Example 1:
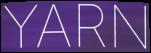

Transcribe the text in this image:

YARN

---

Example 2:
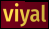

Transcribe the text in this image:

viyal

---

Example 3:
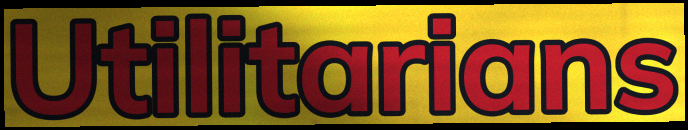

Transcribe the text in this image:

Utilitarians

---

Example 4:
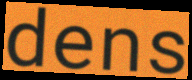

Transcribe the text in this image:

dens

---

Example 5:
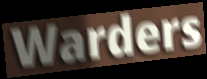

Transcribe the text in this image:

Warders